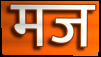
मज